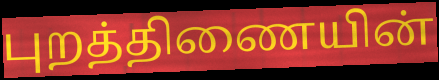
புறத்திணையின்